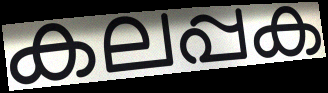
കലപ്പക